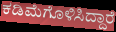
ಕಡಿಮೆಗೊಳಿಸಿದ್ದಾರೆ